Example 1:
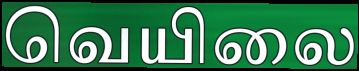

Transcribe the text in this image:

வெயிலை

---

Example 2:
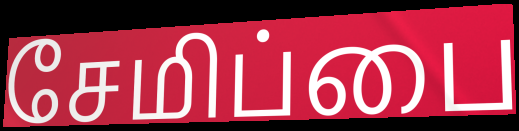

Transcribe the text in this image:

சேமிப்பை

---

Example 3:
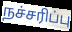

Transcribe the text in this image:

நச்சரிப்பு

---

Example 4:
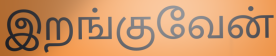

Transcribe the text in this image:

இறங்குவேன்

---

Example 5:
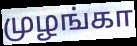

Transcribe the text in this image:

முழங்கா